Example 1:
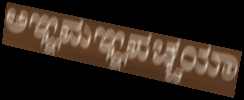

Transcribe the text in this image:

ಅಞ್ಞಮಞ್ಞಪಚ್ಚಯಾ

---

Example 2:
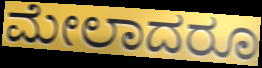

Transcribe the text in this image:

ಮೇಲಾದರೂ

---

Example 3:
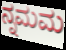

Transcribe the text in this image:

ನ್ನಮಮ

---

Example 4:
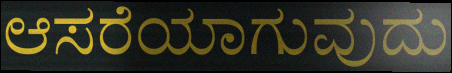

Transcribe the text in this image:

ಆಸರೆಯಾಗುವುದು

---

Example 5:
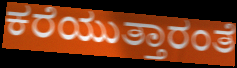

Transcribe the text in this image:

ಕರೆಯುತ್ತಾರಂತೆ